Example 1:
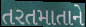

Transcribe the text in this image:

તરતમાતાને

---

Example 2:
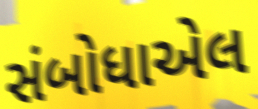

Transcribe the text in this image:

સંબોધાએલ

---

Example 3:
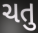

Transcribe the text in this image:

ચતુ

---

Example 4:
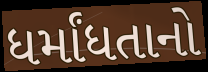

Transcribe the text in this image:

ધર્માંધતાનો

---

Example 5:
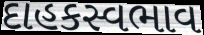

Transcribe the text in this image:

દાહકસ્વભાવ